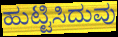
ಹುಟ್ಟಿಸಿದುವು